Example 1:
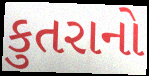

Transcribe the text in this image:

કુતરાનો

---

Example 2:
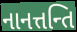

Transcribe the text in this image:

નાનત્તન્તિ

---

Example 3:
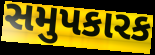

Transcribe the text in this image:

સમુપકારક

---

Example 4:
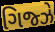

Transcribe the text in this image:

ગિજ્ઝે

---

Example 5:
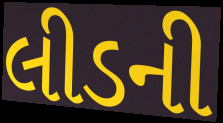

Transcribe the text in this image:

લીડની